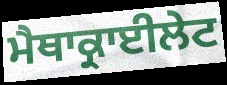
ਮੈਥਾਕ੍ਰਾਈਲੇਟ